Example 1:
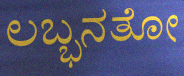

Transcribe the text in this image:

ಲಬ್ಭನತೋ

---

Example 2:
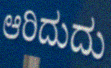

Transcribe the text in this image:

ಆರಿದುದು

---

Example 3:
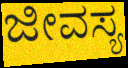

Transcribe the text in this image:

ಜೀವಸ್ಯ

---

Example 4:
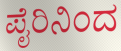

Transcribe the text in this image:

ಪೈರಿನಿಂದ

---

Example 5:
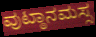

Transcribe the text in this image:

ವುಟ್ಠಾನಮಸ್ಸ